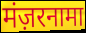
मंज़रनामा